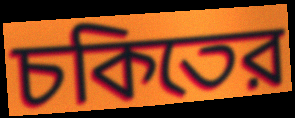
চকিতের